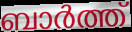
ബാർത്ത്